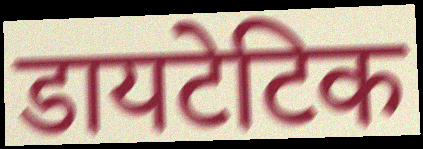
डायटेटिक